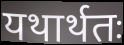
यथार्थतः